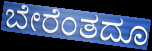
ಬೇರೆಂತದೂ